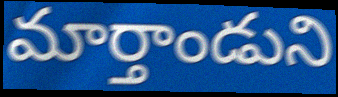
మార్తాండుని